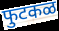
फुटकळ